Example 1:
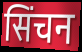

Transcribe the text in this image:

सिंचन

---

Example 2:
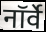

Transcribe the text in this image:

नॉर्वे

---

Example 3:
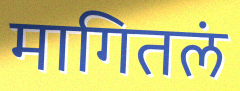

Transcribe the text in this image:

मागितलं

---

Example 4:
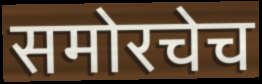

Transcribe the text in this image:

समोरचेच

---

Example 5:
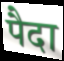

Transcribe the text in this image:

पैदा